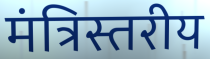
मंत्रिस्तरीय